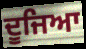
ਦੂਜਿਆ